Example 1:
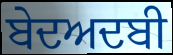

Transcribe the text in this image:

ਬੇਦਅਦਬੀ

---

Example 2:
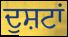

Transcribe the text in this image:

ਦੁਸ਼ਟਾਂ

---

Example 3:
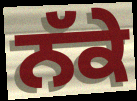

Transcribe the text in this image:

ਨੱਕੇ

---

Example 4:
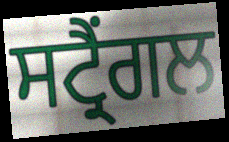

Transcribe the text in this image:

ਸਟ੍ਰੈਂਗਲ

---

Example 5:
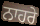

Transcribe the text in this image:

ਨਾਹਰੇ